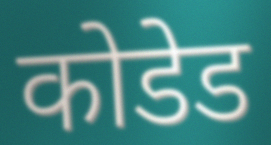
कोडेड